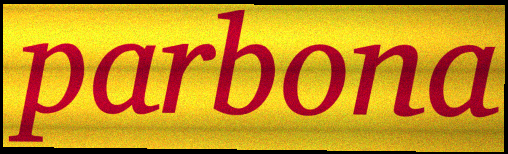
parbona